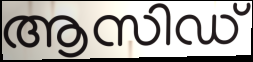
ആസിഡ്